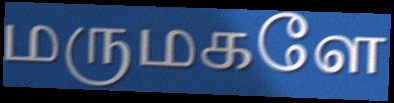
மருமகளே